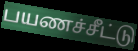
பயணச்சீட்டு